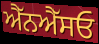
ਐੱਨਐੱਸਓ